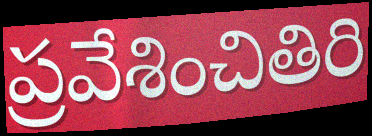
ప్రవేశించితిరి